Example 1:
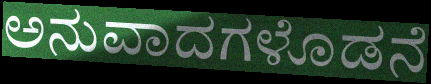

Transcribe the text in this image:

ಅನುವಾದಗಳೊಡನೆ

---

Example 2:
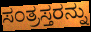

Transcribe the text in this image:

ಸಂತ್ರಸ್ತರನ್ನು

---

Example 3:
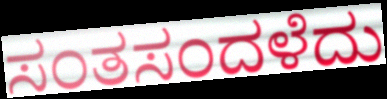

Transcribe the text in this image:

ಸಂತಸಂದಳೆದು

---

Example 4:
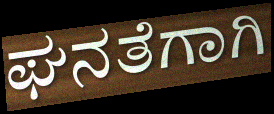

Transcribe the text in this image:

ಘನತೆಗಾಗಿ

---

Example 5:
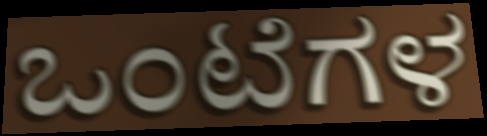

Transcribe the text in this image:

ಒಂಟೆಗಳ